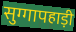
सुग्गापहाड़ी